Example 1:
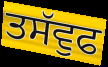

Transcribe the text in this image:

ਤਸੱਵੁਫ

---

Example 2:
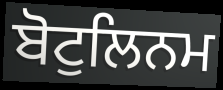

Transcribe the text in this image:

ਬੋਟੁਲਿਨਮ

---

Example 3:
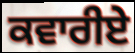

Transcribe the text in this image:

ਕਵਾਰੀਏ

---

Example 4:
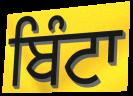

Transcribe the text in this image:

ਬਿੰਟਾ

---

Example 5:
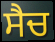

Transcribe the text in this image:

ਸੈਚ